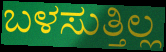
ಬಳಸುತ್ತಿಲ್ಲ